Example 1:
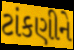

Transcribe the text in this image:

ટાંકણીને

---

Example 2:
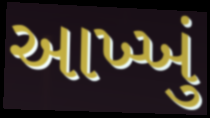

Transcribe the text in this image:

આખ્ખું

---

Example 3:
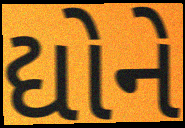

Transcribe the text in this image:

દ્યોને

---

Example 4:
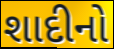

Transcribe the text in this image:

શાદીનો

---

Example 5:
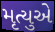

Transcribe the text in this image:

મૃત્યુએ